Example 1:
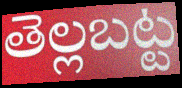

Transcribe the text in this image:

తెల్లబట్ట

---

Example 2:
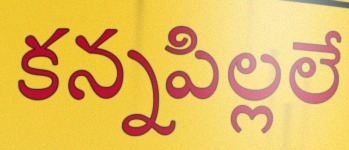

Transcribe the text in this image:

కన్నపిల్లలే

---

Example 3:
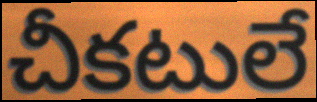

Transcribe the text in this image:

చీకటులే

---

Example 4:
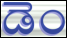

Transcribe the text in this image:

డెం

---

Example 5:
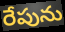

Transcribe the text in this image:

రేపును